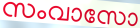
സംവാസോ